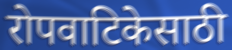
रोपवाटिकेसाठी